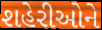
શહેરીઓને